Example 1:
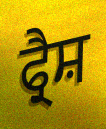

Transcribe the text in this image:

ਫ੍ਰੈਸ਼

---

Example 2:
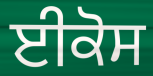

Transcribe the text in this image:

ਈਕੋਸ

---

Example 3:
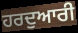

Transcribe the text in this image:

ਹਰਦੁਆਰੀ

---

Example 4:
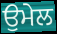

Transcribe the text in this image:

ਉਮੇਲ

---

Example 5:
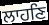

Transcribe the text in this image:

ਲਾਹਣਿ